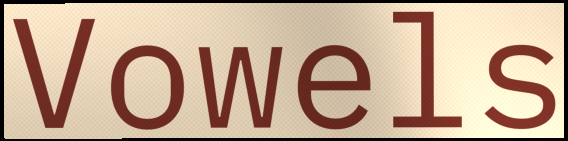
Vowels